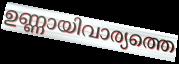
ഉണ്ണായിവാര്യത്തെ